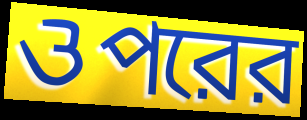
ওপরের